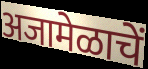
अजामेळाचें